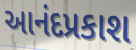
આનંદપ્રકાશ